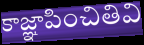
కాజ్ఞాపించితివి